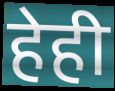
हेही